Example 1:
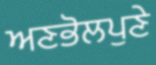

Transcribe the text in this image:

ਅਣਭੋਲਪੁਣੇ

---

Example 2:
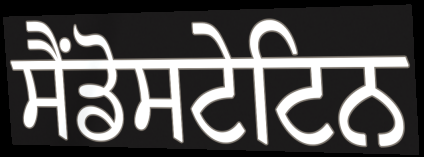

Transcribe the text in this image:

ਸੈਂਡੋਸਟੇਟਿਨ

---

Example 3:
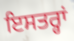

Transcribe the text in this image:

ਇਸਤਰ੍ਹਾਂ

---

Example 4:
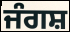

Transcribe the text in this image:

ਜੰਗਸ਼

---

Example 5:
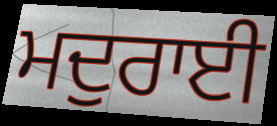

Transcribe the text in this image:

ਮਦੁਰਾਈ